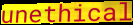
unethical